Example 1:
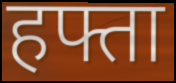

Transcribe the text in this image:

हफ्ता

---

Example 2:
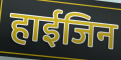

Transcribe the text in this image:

हाईजिन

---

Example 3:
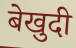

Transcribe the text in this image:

बेखुदी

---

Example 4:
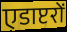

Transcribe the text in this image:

एडाप्टरों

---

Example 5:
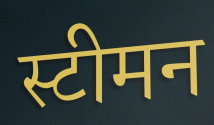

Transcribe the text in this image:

स्टीमन